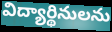
విద్యార్థినులను